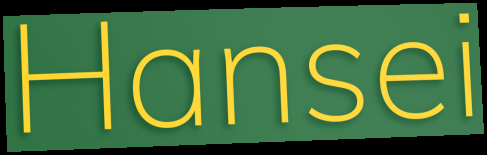
Hansei